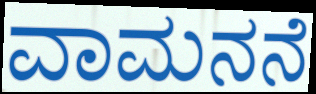
ವಾಮನನೆ